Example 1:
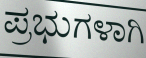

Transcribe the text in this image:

ಪ್ರಭುಗಳಾಗಿ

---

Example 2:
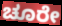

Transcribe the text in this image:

ಚೂರೇ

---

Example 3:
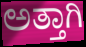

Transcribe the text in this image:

ಅತ್ತಾಗಿ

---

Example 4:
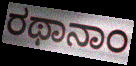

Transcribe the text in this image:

ರಥಾನಾಂ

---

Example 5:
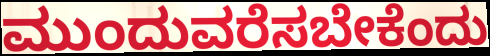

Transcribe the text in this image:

ಮುಂದುವರೆಸಬೇಕೆಂದು